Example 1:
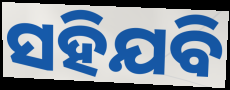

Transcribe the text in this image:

ସହିଯବି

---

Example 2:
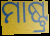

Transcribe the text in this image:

ମାଷ୍ଟ୍ର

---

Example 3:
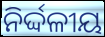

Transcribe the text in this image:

ନିର୍ଦ୍ଦଳୀୟ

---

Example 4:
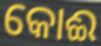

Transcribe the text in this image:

କୋଈ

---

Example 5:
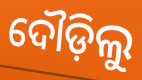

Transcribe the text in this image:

ଦୌଡ଼ିଲୁ